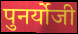
पुनर्योजी